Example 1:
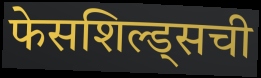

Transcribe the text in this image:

फेसशिल्ड्सची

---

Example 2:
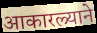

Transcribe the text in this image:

आकारल्याने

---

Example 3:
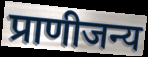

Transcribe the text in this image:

प्राणीजन्य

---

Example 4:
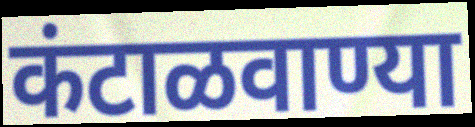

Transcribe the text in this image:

कंटाळवाण्या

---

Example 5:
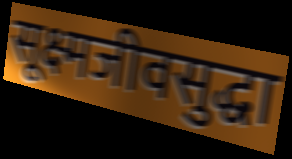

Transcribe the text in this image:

सूक्ष्मजीवसुद्धा